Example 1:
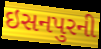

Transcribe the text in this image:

ઇસનપુરની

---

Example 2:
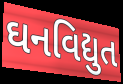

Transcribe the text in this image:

ઘનવિદ્યુત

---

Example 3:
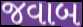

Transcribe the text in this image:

જવાબ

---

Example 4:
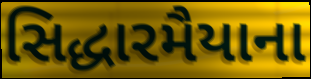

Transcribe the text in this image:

સિદ્ધારમૈયાના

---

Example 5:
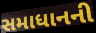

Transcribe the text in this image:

સમાધાનની